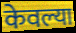
केवल्या